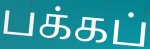
பக்கப்